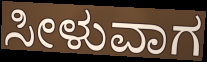
ಸೀಳುವಾಗ